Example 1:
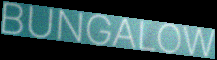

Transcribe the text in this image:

BUNGALOW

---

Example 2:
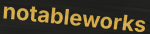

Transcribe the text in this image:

notableworks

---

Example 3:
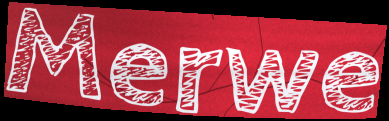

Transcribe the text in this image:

Merwe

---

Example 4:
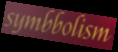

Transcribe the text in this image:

symbbolism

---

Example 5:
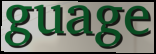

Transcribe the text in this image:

guage